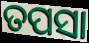
ତପସା